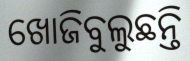
ଖୋଜିବୁଲୁଛନ୍ତି